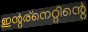
ഇന്റര്നെറ്റിന്റെ